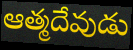
ఆత్మదేవుడు